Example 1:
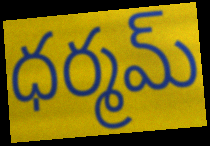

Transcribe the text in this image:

ధర్మమ్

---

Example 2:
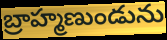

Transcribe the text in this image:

బ్రాహ్మణుండును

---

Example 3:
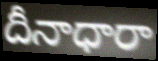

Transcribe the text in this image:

దీనాధారా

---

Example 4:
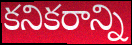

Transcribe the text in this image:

కనికరాన్ని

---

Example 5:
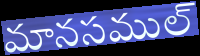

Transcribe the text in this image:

మానసముల్